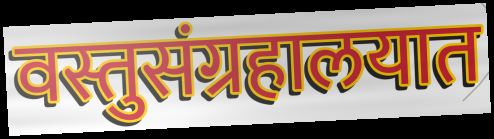
वस्तुसंग्रहालयात